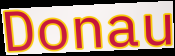
Donau